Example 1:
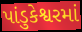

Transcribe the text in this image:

પાંડુકેશ્વરમાં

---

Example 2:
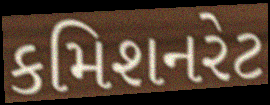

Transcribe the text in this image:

કમિશનરેટ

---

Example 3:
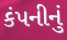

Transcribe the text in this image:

કંપનીનું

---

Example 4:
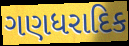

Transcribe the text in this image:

ગણધરાદિક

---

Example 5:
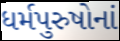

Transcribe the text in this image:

ધર્મપુરુષોનાં